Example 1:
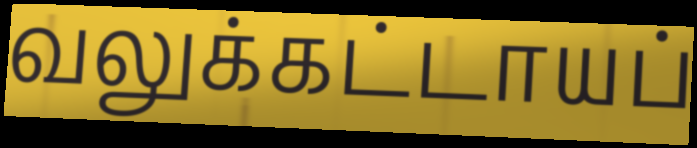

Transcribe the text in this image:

வலுக்கட்டாயப்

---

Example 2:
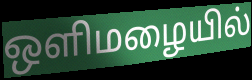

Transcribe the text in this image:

ஒளிமழையில்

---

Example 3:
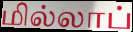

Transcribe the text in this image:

மில்லாப்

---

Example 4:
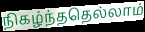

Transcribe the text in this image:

நிகழ்ந்ததெல்லாம்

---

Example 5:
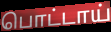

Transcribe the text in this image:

பொட்டாய்